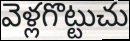
వెళ్లగొట్టుచు